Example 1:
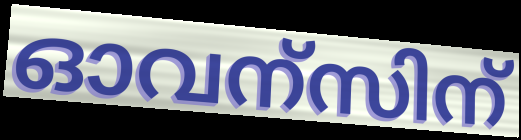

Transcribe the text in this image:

ഓവന്സിന്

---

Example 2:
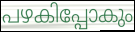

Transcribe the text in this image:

പഴകിപ്പോകും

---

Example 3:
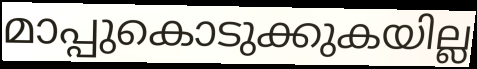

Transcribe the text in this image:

മാപ്പുകൊടുക്കുകയില്ല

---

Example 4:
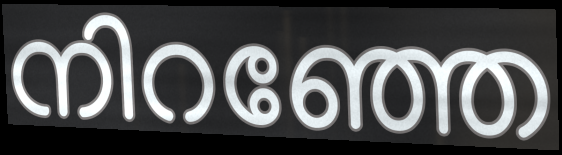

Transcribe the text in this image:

നിറഞ്ഞേ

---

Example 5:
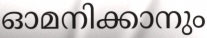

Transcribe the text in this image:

ഓമനിക്കാനും